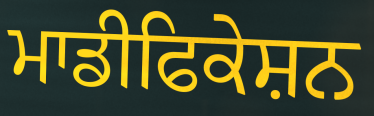
ਮਾਡੀਫਿਕੇਸ਼ਨ